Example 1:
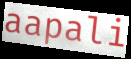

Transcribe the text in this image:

aapali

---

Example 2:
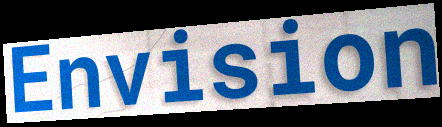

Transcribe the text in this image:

Envision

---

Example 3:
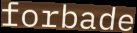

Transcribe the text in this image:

forbade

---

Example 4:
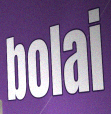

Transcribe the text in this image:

bolai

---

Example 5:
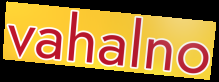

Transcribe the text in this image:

vahalno